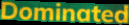
Dominated